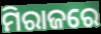
ମିରାଜରେ